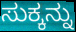
ಸುಕ್ಕನ್ನು